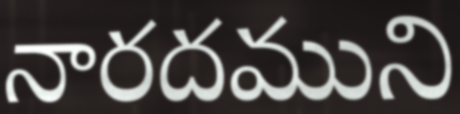
నారదముని